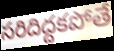
సరిదిద్దకపోతే